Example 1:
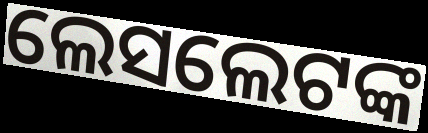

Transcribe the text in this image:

ଲେସଲେଟଙ୍କ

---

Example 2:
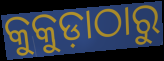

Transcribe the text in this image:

କୁକୁଡ଼ାଠାରୁ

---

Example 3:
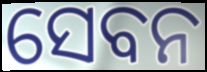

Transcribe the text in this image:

ସେବନ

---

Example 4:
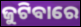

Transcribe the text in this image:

ଜୁଟିବାରେ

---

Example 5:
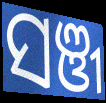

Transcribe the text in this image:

ସଞ୍ଜ